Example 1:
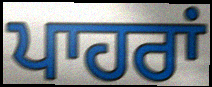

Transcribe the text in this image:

ਪਾਹਰਾਂ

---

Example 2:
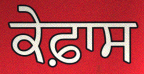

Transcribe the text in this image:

ਕੇਫ਼ਾਸ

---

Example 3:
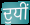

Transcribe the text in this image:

ਦੁਧੀਂ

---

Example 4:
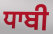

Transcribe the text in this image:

ਧਾਬੀ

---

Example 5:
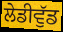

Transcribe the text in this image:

ਲੇਡੀਵੁੱਡ